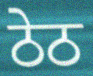
ਠੇਠ